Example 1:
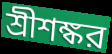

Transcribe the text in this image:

শ্রীশঙ্কর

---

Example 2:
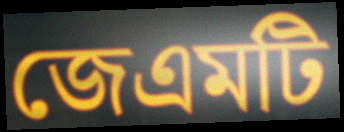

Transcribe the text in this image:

জেএমটি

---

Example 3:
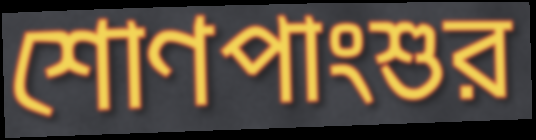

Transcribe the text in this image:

শোণপাংশুর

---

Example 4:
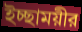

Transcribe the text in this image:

ইচ্ছাময়ীর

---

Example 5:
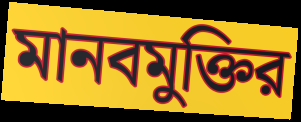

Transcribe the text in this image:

মানবমুক্তির